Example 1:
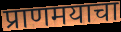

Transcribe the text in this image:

प्राणमयाचा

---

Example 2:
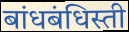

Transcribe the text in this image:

बांधबंधिस्ती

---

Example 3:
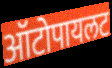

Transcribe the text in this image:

ऑटोपायलट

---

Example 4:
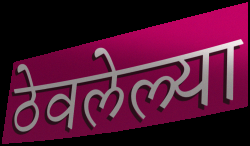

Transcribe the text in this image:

ठेवलेल्या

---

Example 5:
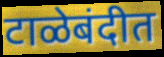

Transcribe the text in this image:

टाळेबंदीत